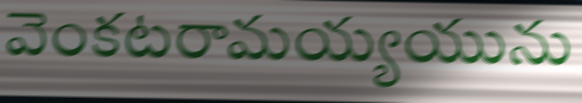
వెంకటరామయ్యయును